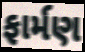
ફાર્મણ